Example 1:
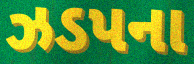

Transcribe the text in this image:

ઝડપના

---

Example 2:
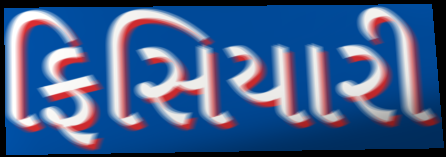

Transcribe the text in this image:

ફિસિયારી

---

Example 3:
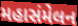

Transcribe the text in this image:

મહાસંમેલન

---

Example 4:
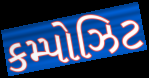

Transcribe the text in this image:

કમ્પોઝિટ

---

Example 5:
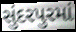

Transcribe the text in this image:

સુંદરપુરમાં